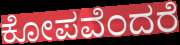
ಕೋಪವೆಂದರೆ